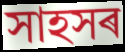
সাহসৰ